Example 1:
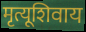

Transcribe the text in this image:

मृत्यूशिवाय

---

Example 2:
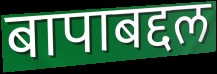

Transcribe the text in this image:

बापाबद्दल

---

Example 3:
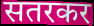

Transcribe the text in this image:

सतरकर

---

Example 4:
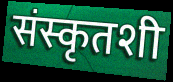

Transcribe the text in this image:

संस्कृतशी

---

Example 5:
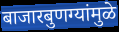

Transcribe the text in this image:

बाजारबुणग्यांमुळे